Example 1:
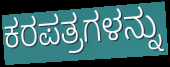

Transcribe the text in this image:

ಕರಪತ್ರಗಳನ್ನು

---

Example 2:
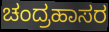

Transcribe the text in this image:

ಚಂದ್ರಹಾಸರ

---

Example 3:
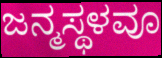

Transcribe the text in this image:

ಜನ್ಮಸ್ಥಳವೂ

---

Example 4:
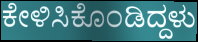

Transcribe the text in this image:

ಕೇಳಿಸಿಕೊಂಡಿದ್ದಳು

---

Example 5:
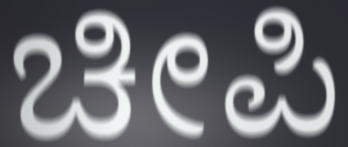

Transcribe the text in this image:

ಚೀಪಿ